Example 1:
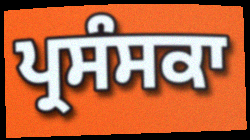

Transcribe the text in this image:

ਪ੍ਰਸੰਸਕਾ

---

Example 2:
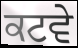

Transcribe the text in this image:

ਕਟਵੇ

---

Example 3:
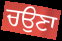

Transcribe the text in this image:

ਚਉਣਾ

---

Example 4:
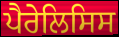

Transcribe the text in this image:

ਪੈਰੇਲਿਸਿਸ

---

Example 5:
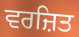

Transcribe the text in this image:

ਵਰਜ਼ਿਤ